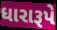
ધારારૂપે